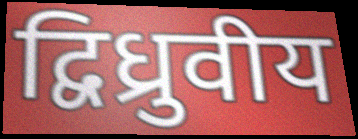
द्विध्रुवीय